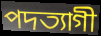
পদত্যাগী